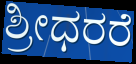
ಶ್ರೀಧರರೆ